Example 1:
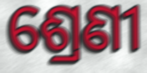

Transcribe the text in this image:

ଶ୍ରେଣୀ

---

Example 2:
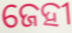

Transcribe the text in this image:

ଜେହୀ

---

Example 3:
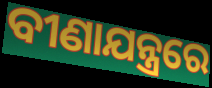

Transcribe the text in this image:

ବୀଣାଯନ୍ତ୍ରରେ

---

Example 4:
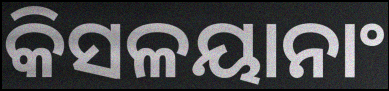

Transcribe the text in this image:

କିସଳୟାନାଂ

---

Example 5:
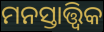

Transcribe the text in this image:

ମନସ୍ତାତ୍ତ୍ବିକ